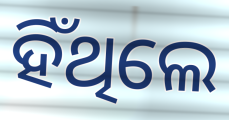
ହିଁଥିଲେ